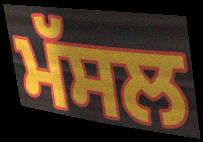
ਮੱਸਲ